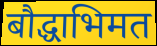
बौद्धाभिमत